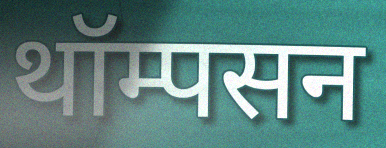
थॉम्पसन